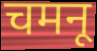
चमनू